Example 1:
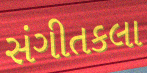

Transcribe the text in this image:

સંગીતકલા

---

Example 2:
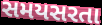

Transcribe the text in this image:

સમયસરતા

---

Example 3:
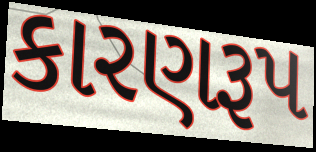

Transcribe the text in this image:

કારણરૂપ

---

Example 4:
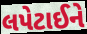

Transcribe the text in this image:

લપેટાઈને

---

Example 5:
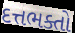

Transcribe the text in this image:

દત્તભક્તો